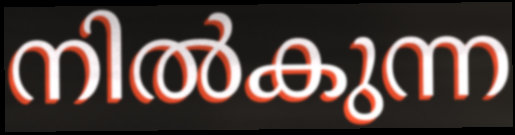
നിൽകുന്ന